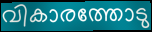
വികാരത്തോടു